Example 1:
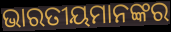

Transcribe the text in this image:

ଭାରତୀୟମାନଙ୍କର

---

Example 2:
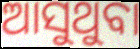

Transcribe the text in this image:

ଆସୁଥୁବା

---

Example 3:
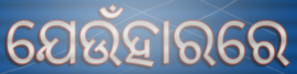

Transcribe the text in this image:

ଯେଉଁହାରରେ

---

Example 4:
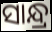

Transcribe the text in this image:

ସାନ୍ଧ୍ର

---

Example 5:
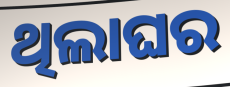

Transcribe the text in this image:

ଥିଲାଘର